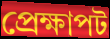
প্ৰেক্ষাপট